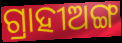
ଗ୍ରାହୀଅଙ୍ଗ